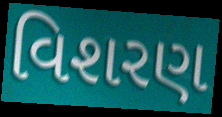
વિશરણ